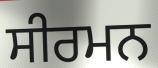
ਸੀਰਮਨ